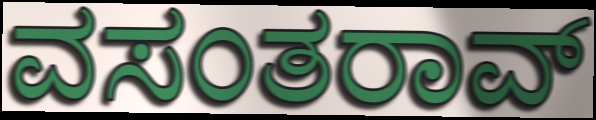
ವಸಂತರಾವ್